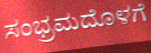
ಸಂಭ್ರಮದೊಳಗೆ